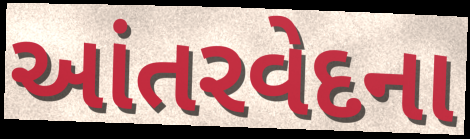
આંતરવેદના